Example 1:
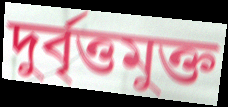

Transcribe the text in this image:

দুর্বৃত্তমুক্ত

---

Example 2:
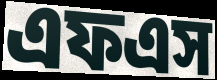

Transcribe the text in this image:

এফএস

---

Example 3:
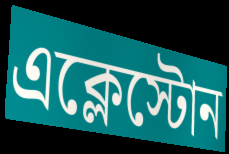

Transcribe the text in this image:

এক্লেস্টোন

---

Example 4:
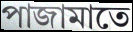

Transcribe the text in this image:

পাজামাতে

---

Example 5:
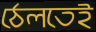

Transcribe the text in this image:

ঠেলতেই